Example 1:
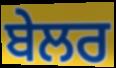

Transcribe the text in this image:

ਬੇਲਰ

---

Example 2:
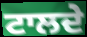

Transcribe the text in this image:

ਟਾਲਦੇ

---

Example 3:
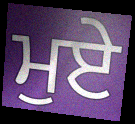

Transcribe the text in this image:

ਮੁਏ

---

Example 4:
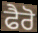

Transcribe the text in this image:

ਫੈਰੋ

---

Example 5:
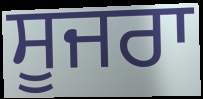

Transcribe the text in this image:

ਸੂਜਰਾ